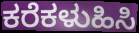
ಕರೆಕಳುಹಿಸಿ